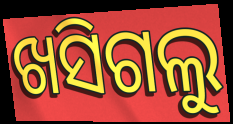
ଖସିଗଲୁ